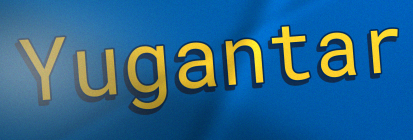
Yugantar